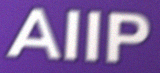
AIIP